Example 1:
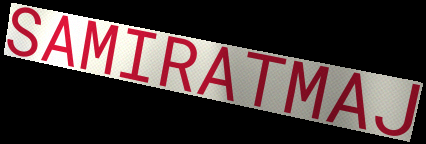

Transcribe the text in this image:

SAMIRATMAJ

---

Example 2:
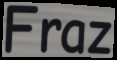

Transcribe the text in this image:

Fraz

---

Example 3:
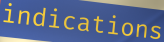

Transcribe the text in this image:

indications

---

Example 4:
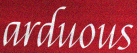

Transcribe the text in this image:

arduous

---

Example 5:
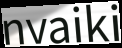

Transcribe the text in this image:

nvaiki